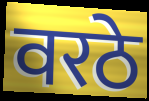
वरठे